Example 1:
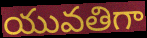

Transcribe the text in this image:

యువతిగా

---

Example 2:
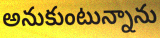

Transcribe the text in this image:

అనుకుంటున్నాను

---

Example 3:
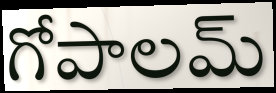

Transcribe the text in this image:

గోపాలమ్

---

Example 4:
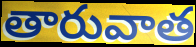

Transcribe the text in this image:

తారువాత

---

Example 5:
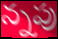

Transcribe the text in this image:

న్నపు